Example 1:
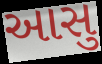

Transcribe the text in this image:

આસુ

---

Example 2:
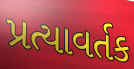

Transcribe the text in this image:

પ્રત્યાવર્તક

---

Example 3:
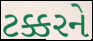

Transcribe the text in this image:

ટક્કરને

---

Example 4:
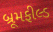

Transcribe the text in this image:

બ્રૂમફીલ્ડ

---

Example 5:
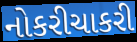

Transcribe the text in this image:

નોકરીચાકરી